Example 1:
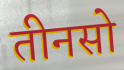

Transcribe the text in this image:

तीनसो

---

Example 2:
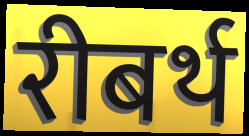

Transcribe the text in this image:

रीबर्थ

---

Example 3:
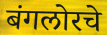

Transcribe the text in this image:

बंगलोरचे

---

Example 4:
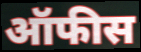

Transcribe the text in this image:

ऑफीस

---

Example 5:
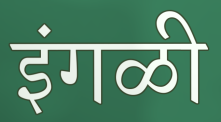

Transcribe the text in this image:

इंगळी